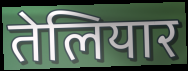
तेलियार